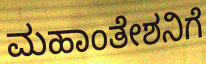
ಮಹಾಂತೇಶನಿಗೆ